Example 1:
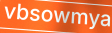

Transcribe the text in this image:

vbsowmya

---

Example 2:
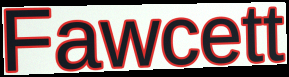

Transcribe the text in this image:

Fawcett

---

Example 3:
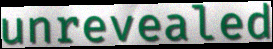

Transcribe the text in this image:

unrevealed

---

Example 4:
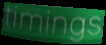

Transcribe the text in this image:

timings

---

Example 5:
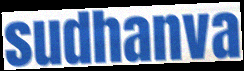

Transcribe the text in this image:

sudhanva